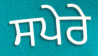
ਸਪੇਰੇ